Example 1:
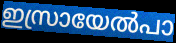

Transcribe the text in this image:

ഇസ്രായേൽപാ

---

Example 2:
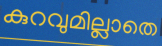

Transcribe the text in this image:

കുറവുമില്ലാതെ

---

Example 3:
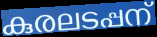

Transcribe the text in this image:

കുരലടപ്പന്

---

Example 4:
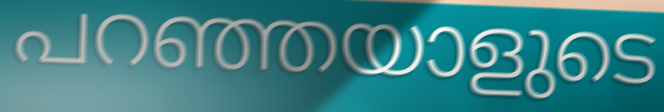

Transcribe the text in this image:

പറഞ്ഞയാളുടെ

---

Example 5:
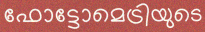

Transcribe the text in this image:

ഫോട്ടോമെട്രിയുടെ